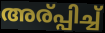
അര്പ്പിച്ച്